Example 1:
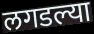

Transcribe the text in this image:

लगडल्या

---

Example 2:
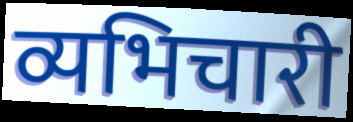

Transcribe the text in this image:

व्यभिचारी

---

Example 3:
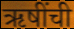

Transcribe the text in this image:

ऋषींची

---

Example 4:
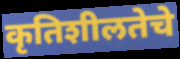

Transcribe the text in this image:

कृतिशीलतेचे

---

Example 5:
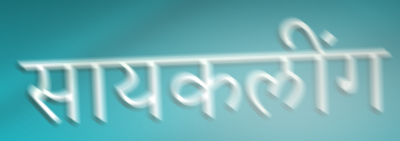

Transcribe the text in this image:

सायकलींग